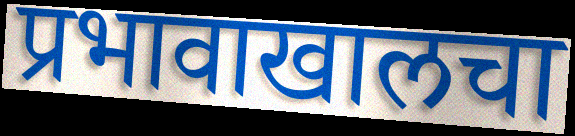
प्रभावाखालचा